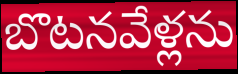
బొటనవేళ్లను